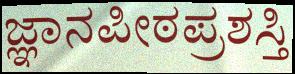
ಜ್ಞಾನಪೀಠಪ್ರಶಸ್ತಿ